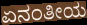
ಏನಂತೀಯ